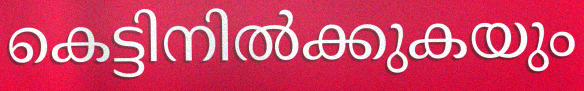
കെട്ടിനിൽക്കുകയും